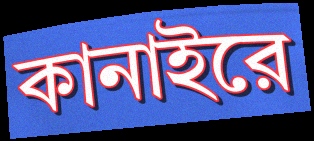
কানাইরে